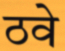
ठवे